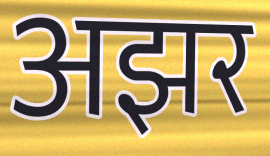
अझर